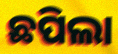
ଛପିଲା